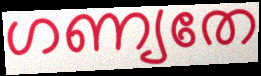
ഗണ്യതേ